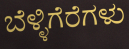
ಬೆಳ್ಳಿಗೆರೆಗಳು